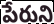
పేరుని